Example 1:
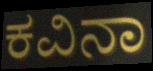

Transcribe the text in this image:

ಕವಿನಾ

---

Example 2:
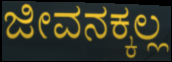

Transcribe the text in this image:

ಜೀವನಕ್ಕಲ್ಲ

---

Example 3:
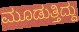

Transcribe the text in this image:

ಮೂಡುತ್ತಿದ್ದು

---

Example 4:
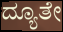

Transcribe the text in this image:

ದ್ಯೂತೇ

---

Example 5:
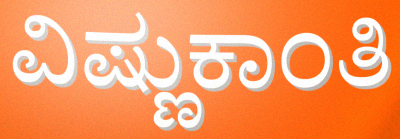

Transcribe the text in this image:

ವಿಷ್ಣುಕಾಂತಿ